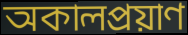
অকালপ্রয়াণ